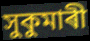
সুকুমাৰী